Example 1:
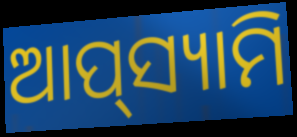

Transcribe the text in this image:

ଆପ୍‌ସ୍ୟାମି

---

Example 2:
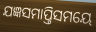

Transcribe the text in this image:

ଯଜ୍ଞସମାପ୍ତିସମୟେ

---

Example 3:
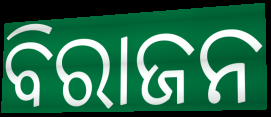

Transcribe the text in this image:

ବିରାଜନ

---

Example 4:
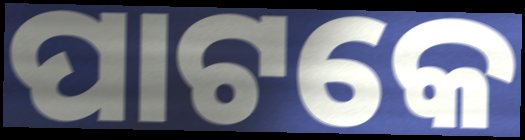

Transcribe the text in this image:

ପାଟକେ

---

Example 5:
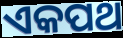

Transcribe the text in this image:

ଏକପଥ